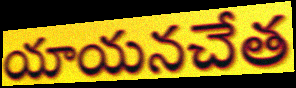
యాయనచేత